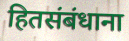
हितसंबंधाना